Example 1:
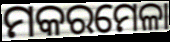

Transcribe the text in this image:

ମକରମେଳା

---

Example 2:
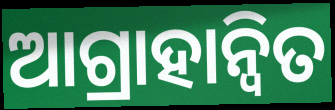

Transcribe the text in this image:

ଆଗ୍ରାହାନ୍ୱିତ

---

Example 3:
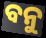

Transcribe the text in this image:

ବନୁ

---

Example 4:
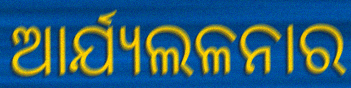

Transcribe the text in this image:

ଆର୍ଯ୍ୟଲଳନାର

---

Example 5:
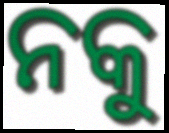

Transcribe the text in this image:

ନକୁ